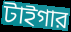
টাইগার